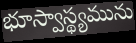
భూస్వాస్థ్యమును